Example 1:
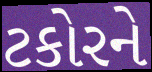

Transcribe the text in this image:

ટકોરને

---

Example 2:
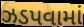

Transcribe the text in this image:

ઝડપવામાં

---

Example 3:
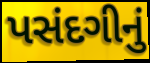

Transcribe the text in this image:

પસંદગીનું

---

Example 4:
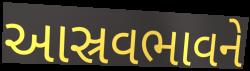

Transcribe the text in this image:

આસ્રવભાવને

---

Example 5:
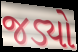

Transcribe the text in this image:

જડ્યો